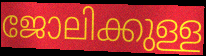
ജോലിക്കുള്ള